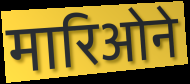
मारिओने